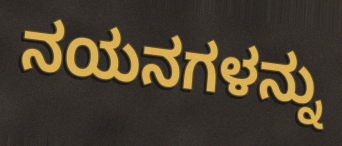
ನಯನಗಳನ್ನು